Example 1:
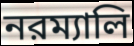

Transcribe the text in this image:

নরম্যালি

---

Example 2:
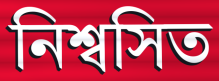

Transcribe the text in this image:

নিশ্বসিত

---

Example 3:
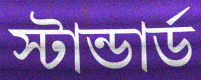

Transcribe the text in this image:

স্টান্ডার্ড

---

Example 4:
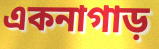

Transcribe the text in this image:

একনাগাড়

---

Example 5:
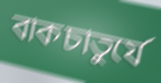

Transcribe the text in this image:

বাকচাতুর্যে